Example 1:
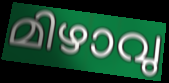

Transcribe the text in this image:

മിഴാവു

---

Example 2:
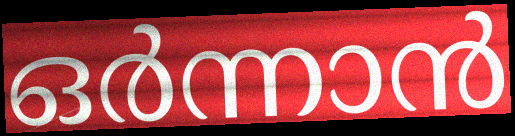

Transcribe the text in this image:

ഒർന്നാൻ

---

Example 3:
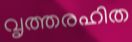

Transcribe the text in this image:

വൃത്തരഹിത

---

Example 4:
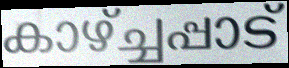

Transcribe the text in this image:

കാഴ്ച്ചപ്പാട്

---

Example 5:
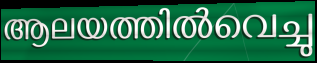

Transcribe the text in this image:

ആലയത്തിൽവെച്ചു